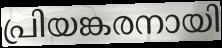
പ്രിയങ്കരനായി